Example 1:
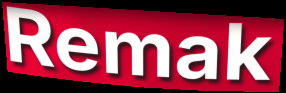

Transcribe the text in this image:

Remak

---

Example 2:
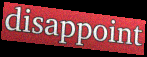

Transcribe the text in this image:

disappoint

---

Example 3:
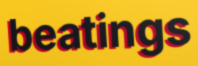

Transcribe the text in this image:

beatings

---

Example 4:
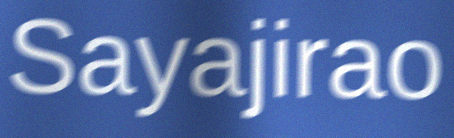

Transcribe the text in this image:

Sayajirao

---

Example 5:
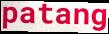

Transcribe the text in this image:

patang